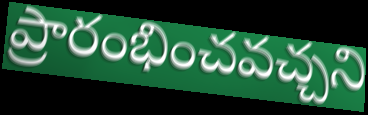
ప్రారంభించవచ్చని